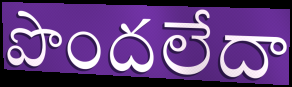
పొందలేదా